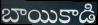
బాయికాడి